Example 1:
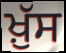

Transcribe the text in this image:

ਖ਼ੁੱਸ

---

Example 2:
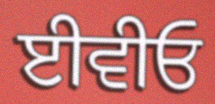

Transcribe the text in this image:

ਈਵੀਓ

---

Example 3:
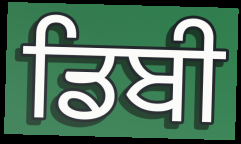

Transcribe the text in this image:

ਡਿਬੀ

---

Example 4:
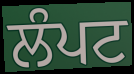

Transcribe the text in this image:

ਲੰਪਟ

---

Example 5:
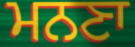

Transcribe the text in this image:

ਮਨਣਾ